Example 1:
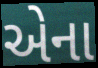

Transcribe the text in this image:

એના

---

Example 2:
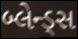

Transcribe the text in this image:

બ્લેન્ડ્સ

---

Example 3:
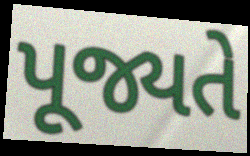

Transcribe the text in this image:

પૂજ્યતે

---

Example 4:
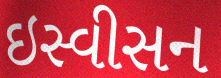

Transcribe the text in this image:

ઇસ્વીસન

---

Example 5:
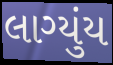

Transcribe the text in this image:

લાગ્યુંય